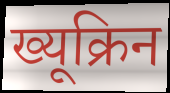
ख्यूक्रिन